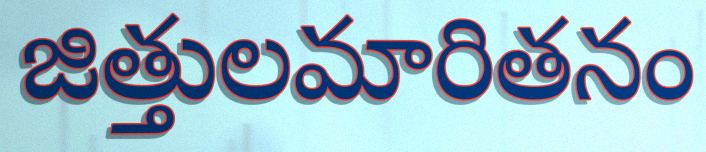
జిత్తులమారితనం